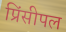
प्रिंसीपल